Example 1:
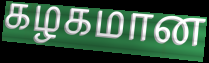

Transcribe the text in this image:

கழகமான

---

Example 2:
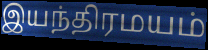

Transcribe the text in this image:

இயந்திரமயம்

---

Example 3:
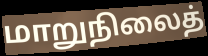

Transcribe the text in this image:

மாறுநிலைத்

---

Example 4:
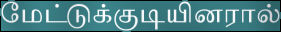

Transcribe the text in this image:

மேட்டுக்குடியினரால்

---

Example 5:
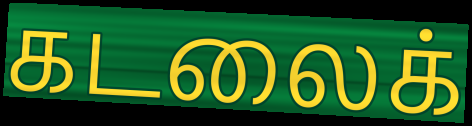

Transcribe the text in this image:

கடலைக்